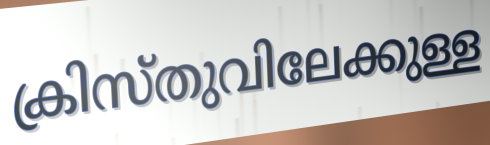
ക്രിസ്തുവിലേക്കുള്ള